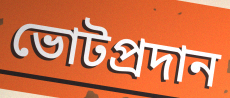
ভোটপ্রদান